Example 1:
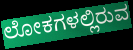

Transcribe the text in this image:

ಲೋಕಗಳಲ್ಲಿರುವ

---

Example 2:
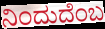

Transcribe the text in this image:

ನಿಂದುದೆಂಬ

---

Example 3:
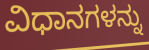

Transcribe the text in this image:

ವಿಧಾನಗಳನ್ನು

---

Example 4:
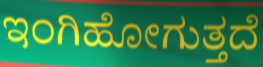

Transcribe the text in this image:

ಇಂಗಿಹೋಗುತ್ತದೆ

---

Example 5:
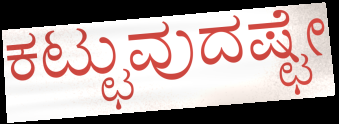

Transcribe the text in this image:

ಕಟ್ಟುವುದಷ್ಟೇ